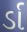
ર્ડા